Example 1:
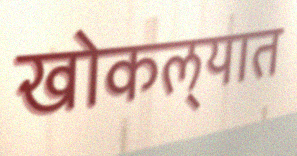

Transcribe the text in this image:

खोकल्यात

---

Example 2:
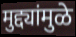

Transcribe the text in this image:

मुद्द्यांमुळे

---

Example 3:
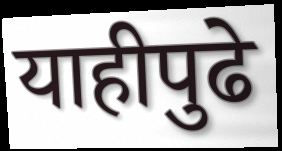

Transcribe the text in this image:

याहीपुढे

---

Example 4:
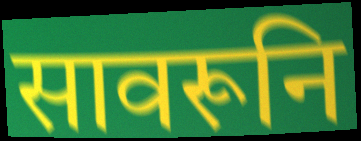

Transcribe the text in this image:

सावरूनि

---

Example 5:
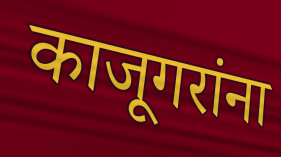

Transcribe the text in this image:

काजूगरांना